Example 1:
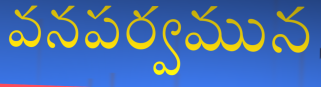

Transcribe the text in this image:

వనపర్వమున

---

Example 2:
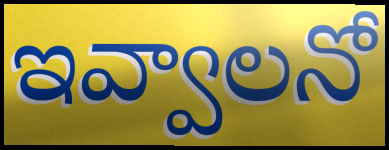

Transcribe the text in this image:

ఇవ్వాలనో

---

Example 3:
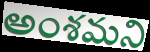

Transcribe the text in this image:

అంశమని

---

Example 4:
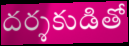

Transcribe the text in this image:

దర్శకుడితో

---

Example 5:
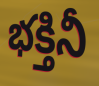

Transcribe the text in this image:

భక్తినీ